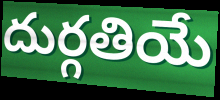
దుర్గతియే